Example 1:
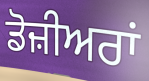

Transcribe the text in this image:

ਡੋਜ਼ੀਅਰਾਂ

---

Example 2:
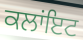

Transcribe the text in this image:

ਕਲਾਂਇਟ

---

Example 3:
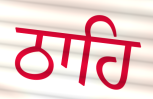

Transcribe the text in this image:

ਠਾਹਿ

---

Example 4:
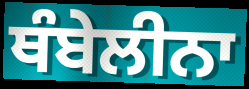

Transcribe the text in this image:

ਥੰਬੇਲੀਨਾ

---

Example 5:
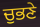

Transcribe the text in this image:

ਚੁਭਣੇ